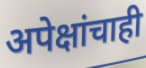
अपेक्षांचाही